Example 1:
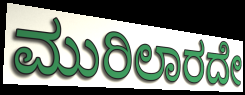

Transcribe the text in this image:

ಮುರಿಲಾರದೇ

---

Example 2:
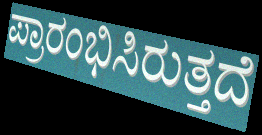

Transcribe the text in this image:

ಪ್ರಾರಂಭಿಸಿರುತ್ತದೆ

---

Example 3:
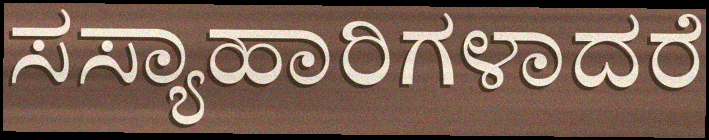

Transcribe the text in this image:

ಸಸ್ಯಾಹಾರಿಗಳಾದರೆ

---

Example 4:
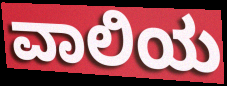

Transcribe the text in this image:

ವಾಲಿಯ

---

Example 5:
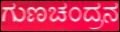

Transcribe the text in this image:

ಗುಣಚಂದ್ರನ